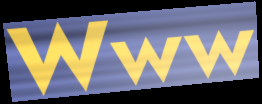
Www